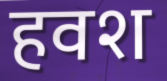
हवश